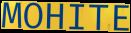
MOHITE